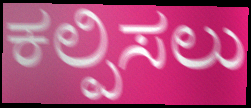
ಕಲ್ಪಿಸಲು